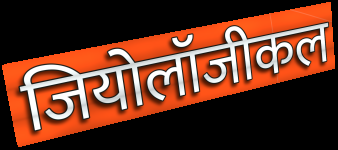
जियोलॉजीकल